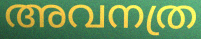
അവനത്ര